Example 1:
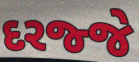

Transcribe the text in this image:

દરજ્જે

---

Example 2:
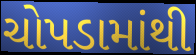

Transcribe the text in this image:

ચોપડામાંથી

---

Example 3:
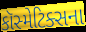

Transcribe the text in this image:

કૉસ્મેટિક્સના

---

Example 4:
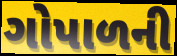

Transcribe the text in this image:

ગોપાળની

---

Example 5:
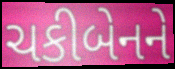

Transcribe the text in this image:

ચકીબેનને